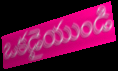
ఒకడైయుండి